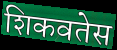
शिकवतेस